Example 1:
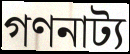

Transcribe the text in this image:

গণনাট্য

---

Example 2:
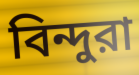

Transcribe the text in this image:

বিন্দুরা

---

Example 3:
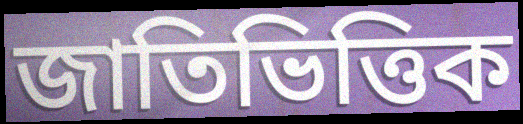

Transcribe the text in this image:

জাতিভিত্তিক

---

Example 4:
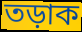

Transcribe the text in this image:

তড়াক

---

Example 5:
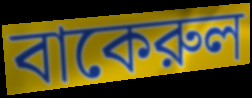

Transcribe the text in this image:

বাকেরুল